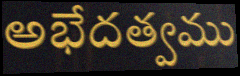
అభేదత్వము